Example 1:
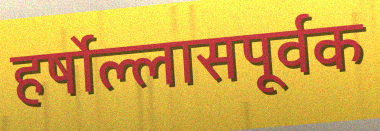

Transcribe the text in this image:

हर्षोल्लासपूर्वक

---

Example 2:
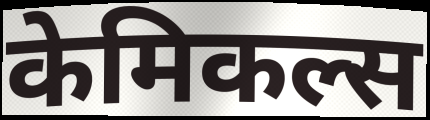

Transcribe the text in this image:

केमिकल्स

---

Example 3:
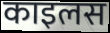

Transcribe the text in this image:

काइलस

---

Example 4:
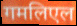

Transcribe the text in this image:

गमलिएल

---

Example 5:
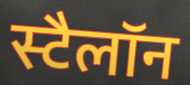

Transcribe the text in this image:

स्टैलॉन